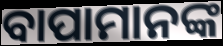
ବାପାମାନଙ୍କ